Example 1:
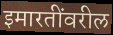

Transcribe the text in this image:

इमारतींवरील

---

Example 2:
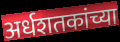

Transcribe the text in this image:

अर्धशतकांच्या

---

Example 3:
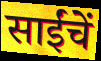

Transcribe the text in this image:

साईंचें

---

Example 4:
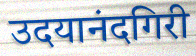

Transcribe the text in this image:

उदयानंदगिरी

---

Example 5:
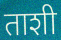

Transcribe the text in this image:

ताशी